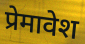
प्रेमावेश